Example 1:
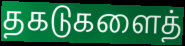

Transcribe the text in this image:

தகடுகளைத்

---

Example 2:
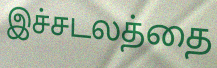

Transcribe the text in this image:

இச்சடலத்தை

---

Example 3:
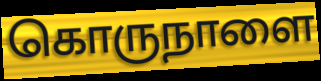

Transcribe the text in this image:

கொருநாளை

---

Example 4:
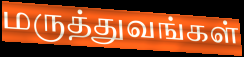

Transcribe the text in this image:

மருத்துவங்கள்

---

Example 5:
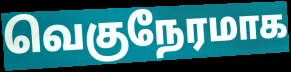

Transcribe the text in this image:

வெகுநேரமாக